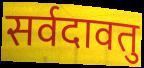
सर्वदावतु